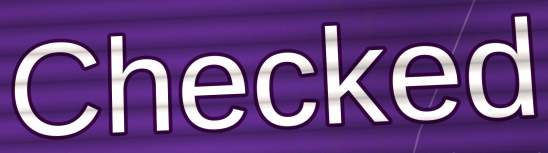
Checked